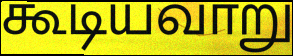
கூடியவாறு